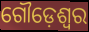
ଗୌଡ଼େଶ୍ୱର